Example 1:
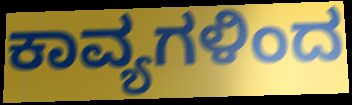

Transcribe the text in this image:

ಕಾವ್ಯಗಳಿಂದ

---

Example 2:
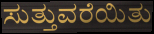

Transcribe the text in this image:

ಸುತ್ತುವರೆಯಿತು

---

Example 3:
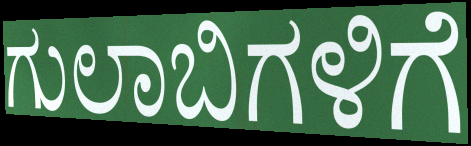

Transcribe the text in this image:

ಗುಲಾಬಿಗಳಿಗೆ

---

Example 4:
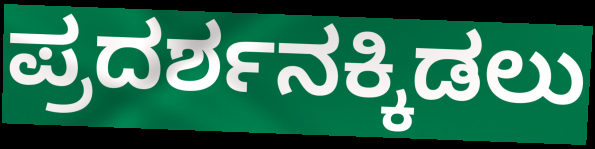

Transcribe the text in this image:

ಪ್ರದರ್ಶನಕ್ಕಿಡಲು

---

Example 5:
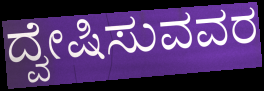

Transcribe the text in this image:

ದ್ವೇಷಿಸುವವರ